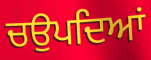
ਚਉਪਦਿਆਂ